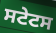
ਸਟੇਟਸ